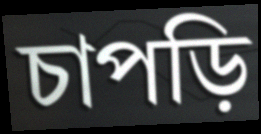
চাপড়ি